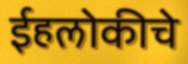
ईहलोकीचे